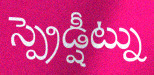
స్ప్రెడ్షీట్ను